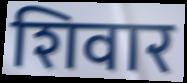
शिवार